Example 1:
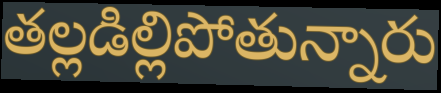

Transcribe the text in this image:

తల్లడిల్లిపోతున్నారు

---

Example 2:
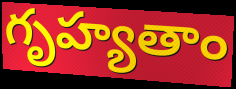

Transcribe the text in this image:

గృహ్యతాం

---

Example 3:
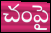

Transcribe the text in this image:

చంపై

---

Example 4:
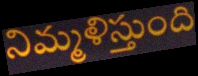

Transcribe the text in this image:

నిమ్మళిస్తుంది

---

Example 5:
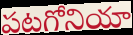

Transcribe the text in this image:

పటగోనియా